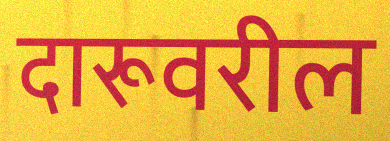
दारूवरील